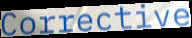
Corrective